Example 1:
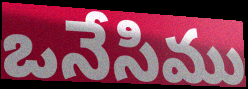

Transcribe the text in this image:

ఒనేసిము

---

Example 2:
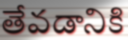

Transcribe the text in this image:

తేవడానికి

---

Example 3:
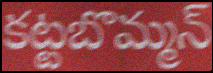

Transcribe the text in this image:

కట్టబొమ్మన్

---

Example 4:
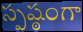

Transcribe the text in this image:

స్పష్ఠంగా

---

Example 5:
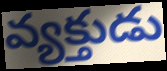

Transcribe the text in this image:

వ్యక్తుడు